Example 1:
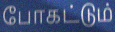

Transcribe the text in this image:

போகட்டும்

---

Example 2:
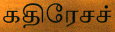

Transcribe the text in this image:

கதிரேசச்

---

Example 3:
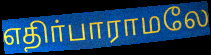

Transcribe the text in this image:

எதிர்பாராமலே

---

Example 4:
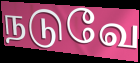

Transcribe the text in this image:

நடுவே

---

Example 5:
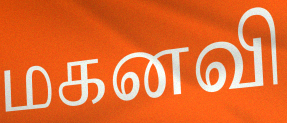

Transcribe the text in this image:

மகனவி